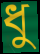
ধু